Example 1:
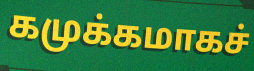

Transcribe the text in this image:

கமுக்கமாகச்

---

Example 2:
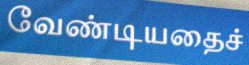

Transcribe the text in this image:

வேண்டியதைச்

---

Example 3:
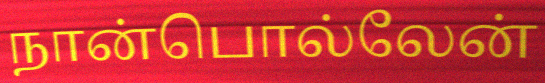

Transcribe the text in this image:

நான்பொல்லேன்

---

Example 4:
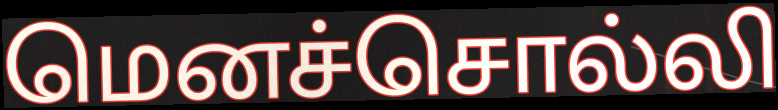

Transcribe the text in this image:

மெனச்சொல்லி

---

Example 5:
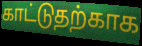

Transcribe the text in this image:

காட்டுதற்காக